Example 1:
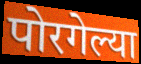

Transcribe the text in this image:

पोरगेल्या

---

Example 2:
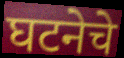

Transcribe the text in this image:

घटनेचे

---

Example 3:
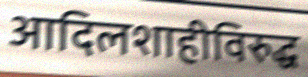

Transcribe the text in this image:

आदिलशाहीविरुद्ध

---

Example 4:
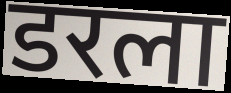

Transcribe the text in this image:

डरला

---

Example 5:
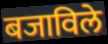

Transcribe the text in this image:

बजाविले